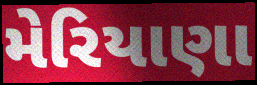
મેરિયાણા